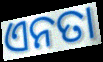
ଏନତା